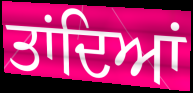
ਤਾਂਦਿਆਂ